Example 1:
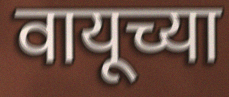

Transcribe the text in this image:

वायूच्या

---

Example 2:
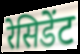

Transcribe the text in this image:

रेसिडेंट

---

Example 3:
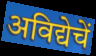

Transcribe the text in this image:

अविद्येचें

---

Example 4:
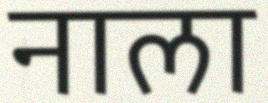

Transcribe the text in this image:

नाला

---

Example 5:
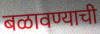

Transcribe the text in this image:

बळावण्याची